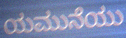
ಯಮುನೆಯು